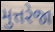
મુત્તરેજા